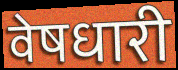
वेषधारी